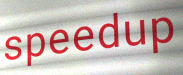
speedup